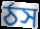
ঠস